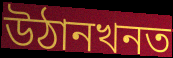
উঠানখনত